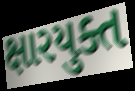
ક્ષારયુક્ત